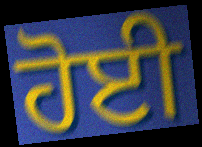
ਹੋਈ